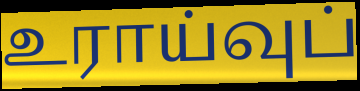
உராய்வுப்